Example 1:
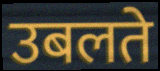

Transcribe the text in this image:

उबलते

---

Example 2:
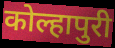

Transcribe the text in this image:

कोल्हापुरी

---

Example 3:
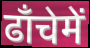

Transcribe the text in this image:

ढाँचेमें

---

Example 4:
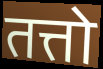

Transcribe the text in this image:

तत्तो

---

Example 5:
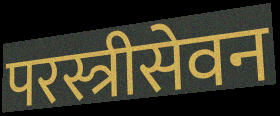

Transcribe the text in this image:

परस्त्रीसेवन